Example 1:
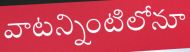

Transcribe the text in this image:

వాటన్నింటిలోనూ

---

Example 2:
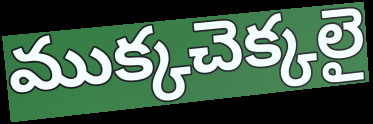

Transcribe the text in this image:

ముక్కచెక్కలై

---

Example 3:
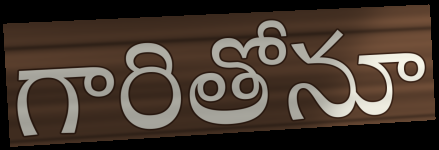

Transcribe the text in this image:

గారితోనూ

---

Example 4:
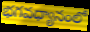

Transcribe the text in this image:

భగవధ్యానంలో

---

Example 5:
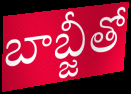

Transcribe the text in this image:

బాబ్జీతో